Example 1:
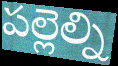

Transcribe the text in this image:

పల్లెల్ని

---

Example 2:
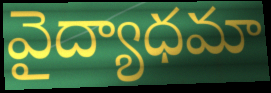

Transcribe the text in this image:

వైద్యాధమా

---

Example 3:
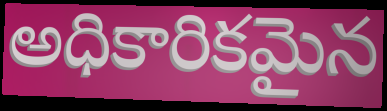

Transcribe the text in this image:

అధికారికమైన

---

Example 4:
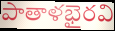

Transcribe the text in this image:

పాతాళభైరవి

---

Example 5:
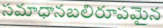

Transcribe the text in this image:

సమాధానబలిరూపమైన